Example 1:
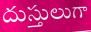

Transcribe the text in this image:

దుస్తులుగా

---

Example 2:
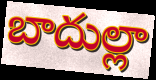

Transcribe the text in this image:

బాదుల్లా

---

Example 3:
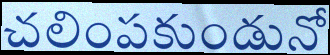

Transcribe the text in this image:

చలింపకుండునో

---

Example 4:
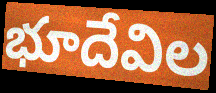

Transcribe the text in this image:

భూదేవిల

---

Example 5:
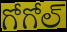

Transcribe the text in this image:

గోగోల్